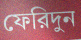
ফেরিদুন